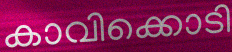
കാവിക്കൊടി